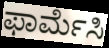
ಫಾರ್ಮೆಸಿ